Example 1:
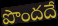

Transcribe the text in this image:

పొందదే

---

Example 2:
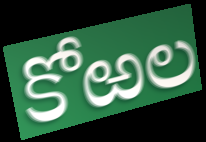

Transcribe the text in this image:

కోఱల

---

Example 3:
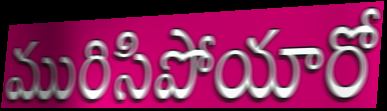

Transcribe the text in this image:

మురిసిపోయారో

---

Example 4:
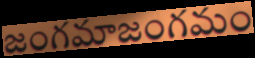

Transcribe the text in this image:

జంగమాజంగమం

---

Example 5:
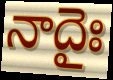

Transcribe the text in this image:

నాదైః